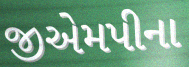
જીએમપીના